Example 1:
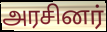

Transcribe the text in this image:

அரசினர்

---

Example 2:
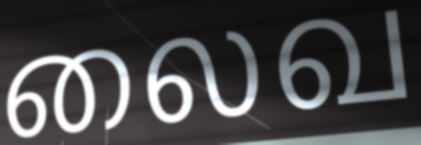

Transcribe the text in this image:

லைவ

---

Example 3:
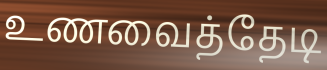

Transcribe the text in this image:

உணவைத்தேடி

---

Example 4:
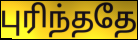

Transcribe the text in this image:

புரிந்ததே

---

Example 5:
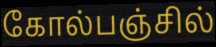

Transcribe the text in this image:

கோல்பஞ்சில்